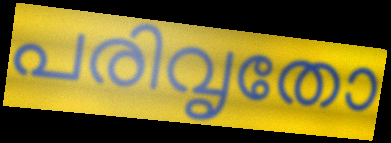
പരിവൃതോ